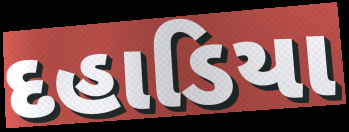
દહાડિયા